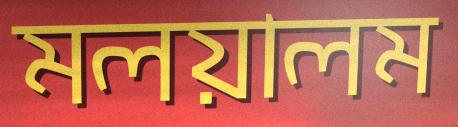
মলয়ালম